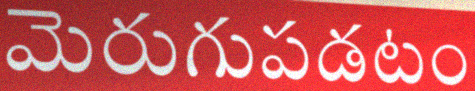
మెరుగుపడటం